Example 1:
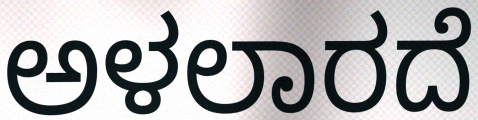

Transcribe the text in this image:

ಅಳಲಾರದೆ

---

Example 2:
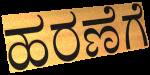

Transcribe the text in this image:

ಹರಣೆಗೆ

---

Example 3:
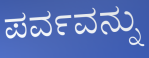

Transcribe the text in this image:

ಪರ್ವವನ್ನು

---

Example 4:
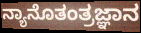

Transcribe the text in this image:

ನ್ಯಾನೊತಂತ್ರಜ್ಞಾನ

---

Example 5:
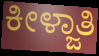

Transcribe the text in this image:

ಕೀಳ್ಜಾತಿ